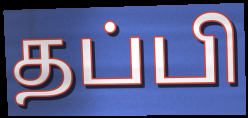
தப்பி